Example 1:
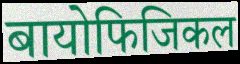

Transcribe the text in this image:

बायोफिजिकल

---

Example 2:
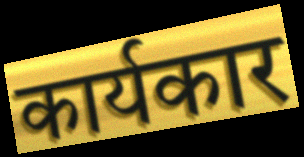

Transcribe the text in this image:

कार्यकार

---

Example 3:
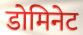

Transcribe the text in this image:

डोमिनेट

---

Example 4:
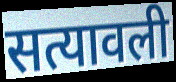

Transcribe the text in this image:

सत्यावली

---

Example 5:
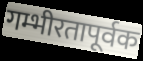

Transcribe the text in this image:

गम्भीरतापूर्वक